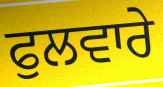
ਫੁਲਵਾਰੇ